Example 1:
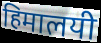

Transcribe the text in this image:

हिमालयी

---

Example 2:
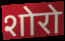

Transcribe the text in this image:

शोरो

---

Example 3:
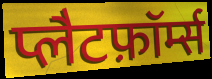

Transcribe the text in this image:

प्लैटफ़ॉर्म्स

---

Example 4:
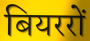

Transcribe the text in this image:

बियररों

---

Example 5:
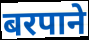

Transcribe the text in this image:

बरपाने